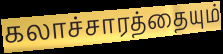
கலாச்சாரத்தையும்